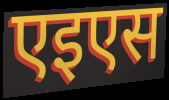
एइएस